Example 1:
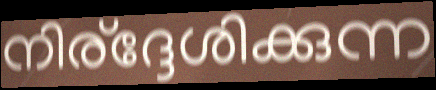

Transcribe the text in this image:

നിര്ദ്ദേശിക്കുന്ന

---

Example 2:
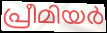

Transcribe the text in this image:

പ്രീമിയർ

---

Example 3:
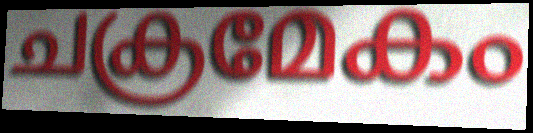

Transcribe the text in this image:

ചക്രമേകം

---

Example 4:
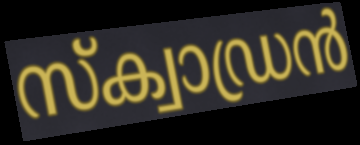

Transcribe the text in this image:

സ്ക്വാഡ്രൻ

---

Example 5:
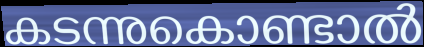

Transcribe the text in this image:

കടന്നുകൊണ്ടാൽ